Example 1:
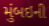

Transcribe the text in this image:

મુંબઇની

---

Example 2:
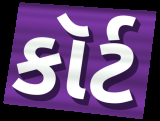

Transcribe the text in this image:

કૉર્ટ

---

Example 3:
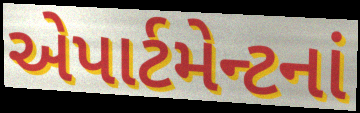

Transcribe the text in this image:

એપાર્ટમેન્ટનાં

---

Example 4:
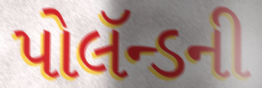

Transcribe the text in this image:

પોલૅન્ડની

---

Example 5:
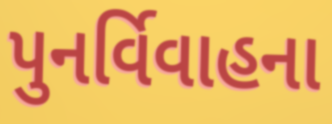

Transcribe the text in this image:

પુનર્વિવાહના